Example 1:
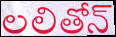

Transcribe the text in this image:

లలితోన్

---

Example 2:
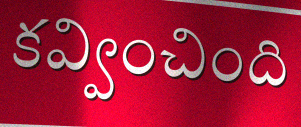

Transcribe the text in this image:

కవ్వించింది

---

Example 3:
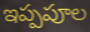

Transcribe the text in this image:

ఇప్పపూల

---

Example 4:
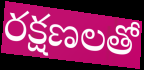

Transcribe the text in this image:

రక్షణలతో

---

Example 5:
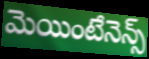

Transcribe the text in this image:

మెయింటేనెన్స్